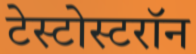
टेस्टोस्टरॉन